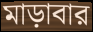
মাড়াবার